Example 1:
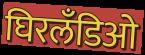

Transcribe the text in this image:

घिरलँडिओ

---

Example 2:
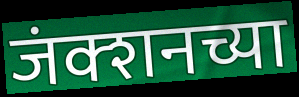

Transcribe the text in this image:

जंक्शनच्या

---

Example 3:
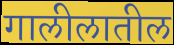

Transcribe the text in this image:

गालीलातील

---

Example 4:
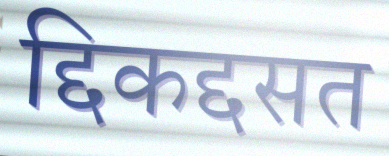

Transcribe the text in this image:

द्दिकद्दसत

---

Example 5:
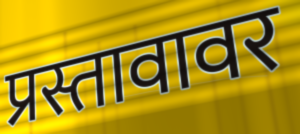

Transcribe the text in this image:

प्रस्तावावर